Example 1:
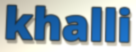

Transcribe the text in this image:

khalli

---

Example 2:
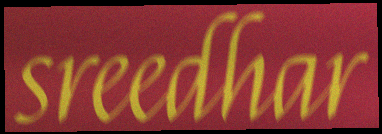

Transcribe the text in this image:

sreedhar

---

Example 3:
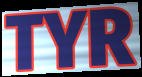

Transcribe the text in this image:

TYR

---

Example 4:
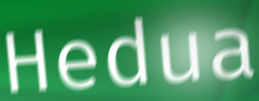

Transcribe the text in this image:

Hedua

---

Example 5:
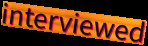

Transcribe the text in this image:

interviewed